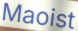
Maoist